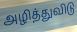
அழித்துவிடு